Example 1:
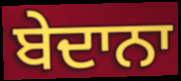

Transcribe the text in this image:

ਬੇਦਾਨਾ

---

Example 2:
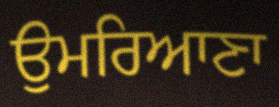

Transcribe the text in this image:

ਉਮਰਿਆਣਾ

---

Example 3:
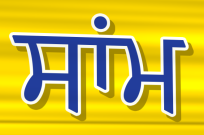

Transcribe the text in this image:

ਸਾਂਮ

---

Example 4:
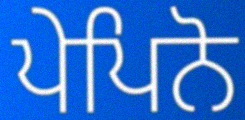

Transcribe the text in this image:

ਪੇਪਿਨੋ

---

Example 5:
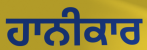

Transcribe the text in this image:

ਹਾਨੀਕਾਰ